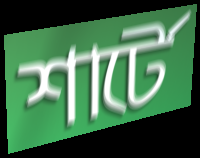
শার্টে